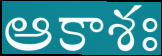
ఆకాశః